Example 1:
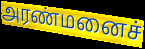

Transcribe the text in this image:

அரண்மனைச்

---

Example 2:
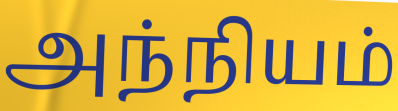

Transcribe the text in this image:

அந்நியம்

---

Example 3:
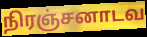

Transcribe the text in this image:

நிரஞ்சனாடவ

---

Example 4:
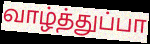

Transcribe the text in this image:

வாழ்த்துப்பா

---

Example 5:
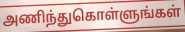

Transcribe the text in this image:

அணிந்துகொள்ளுங்கள்